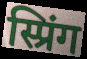
स्प्रिंग